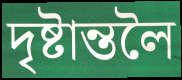
দৃষ্টান্তলৈ